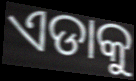
ଏଡାକୁ